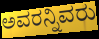
ಅವರನ್ನಿವರು